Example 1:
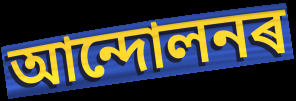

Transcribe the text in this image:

আন্দোলনৰ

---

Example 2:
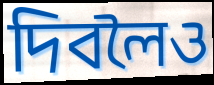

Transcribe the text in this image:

দিবলৈও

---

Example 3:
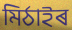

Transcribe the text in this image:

মিঠাইৰ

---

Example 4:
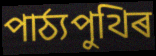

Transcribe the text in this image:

পাঠ্যপুথিৰ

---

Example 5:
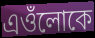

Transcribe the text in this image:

এওঁলোকে